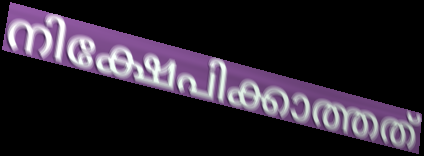
നിക്ഷേപിക്കാത്തത്